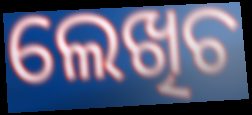
ଲେଖିଚ